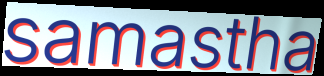
samastha